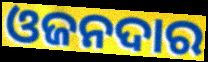
ଓଜନଦାର